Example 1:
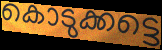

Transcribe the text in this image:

കൊടുക്കട്ടെ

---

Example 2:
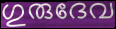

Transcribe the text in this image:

ഗുരുദേവ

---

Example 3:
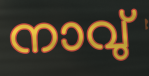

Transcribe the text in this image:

നാവു്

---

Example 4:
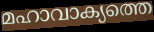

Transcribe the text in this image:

മഹാവാക്യത്തെ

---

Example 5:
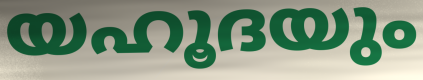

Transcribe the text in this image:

യഹൂദയും